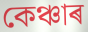
কেঞ্চাৰ